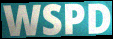
WSPD